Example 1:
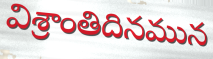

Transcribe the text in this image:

విశ్రాంతిదినమున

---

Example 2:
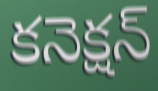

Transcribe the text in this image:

కనెక్షన్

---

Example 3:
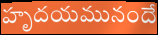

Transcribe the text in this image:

హృదయమునందే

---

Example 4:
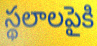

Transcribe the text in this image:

స్థలాలపైకి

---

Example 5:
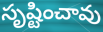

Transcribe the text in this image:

సృష్టించావు